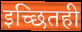
इच्छितही